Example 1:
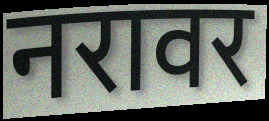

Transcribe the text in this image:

नरावर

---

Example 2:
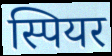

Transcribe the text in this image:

स्पियर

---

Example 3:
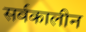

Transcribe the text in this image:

सर्वकालीन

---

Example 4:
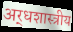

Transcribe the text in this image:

अर्धशास्त्रीय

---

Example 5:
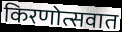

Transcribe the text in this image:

किरणोत्सवात